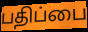
பதிப்பை